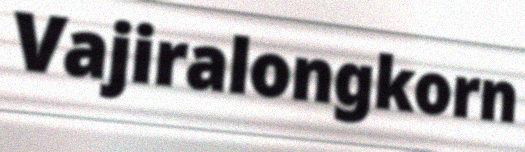
Vajiralongkorn